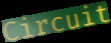
Circuit